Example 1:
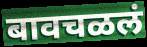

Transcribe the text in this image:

बावचळलं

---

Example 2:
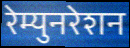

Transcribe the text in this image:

रेम्युनरेशन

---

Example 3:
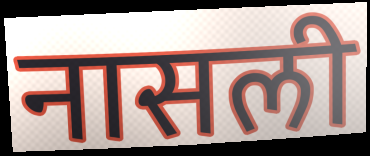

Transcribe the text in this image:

नासली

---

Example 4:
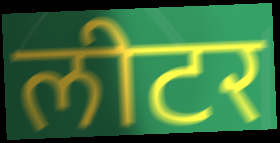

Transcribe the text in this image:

लीटर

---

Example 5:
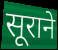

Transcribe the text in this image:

सूराने